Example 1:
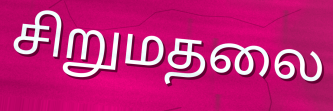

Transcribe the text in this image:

சிறுமதலை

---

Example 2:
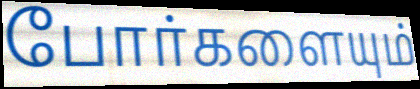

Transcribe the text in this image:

போர்களையும்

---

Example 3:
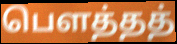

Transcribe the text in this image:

பௌத்தத்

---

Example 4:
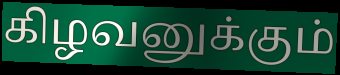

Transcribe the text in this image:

கிழவனுக்கும்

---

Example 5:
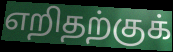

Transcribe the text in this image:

எறிதற்குக்